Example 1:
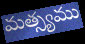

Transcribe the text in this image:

మత్స్యము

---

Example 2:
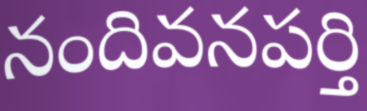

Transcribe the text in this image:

నందివనపర్తి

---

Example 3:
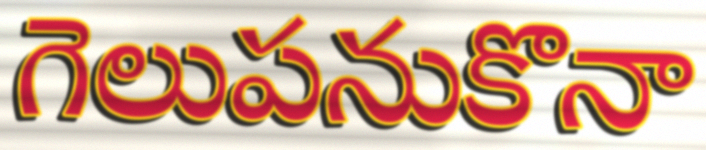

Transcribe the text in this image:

గెలుపనుకొనా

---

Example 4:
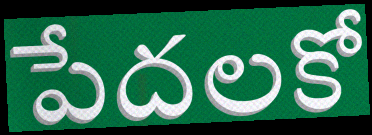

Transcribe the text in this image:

పేదలకో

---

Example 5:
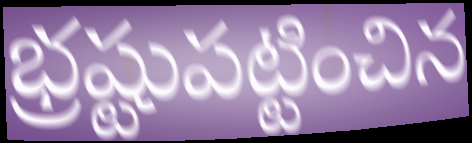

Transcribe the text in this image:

భ్రష్టుపట్టించిన